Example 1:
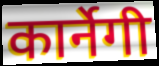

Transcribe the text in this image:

कार्नेगी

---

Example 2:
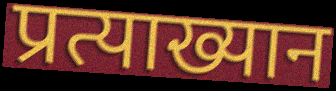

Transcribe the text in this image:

प्रत्याख्यान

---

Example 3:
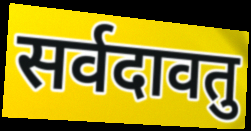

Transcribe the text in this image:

सर्वदावतु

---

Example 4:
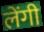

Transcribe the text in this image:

लेंगी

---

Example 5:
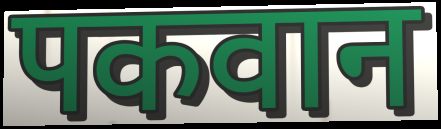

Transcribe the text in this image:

पकवान